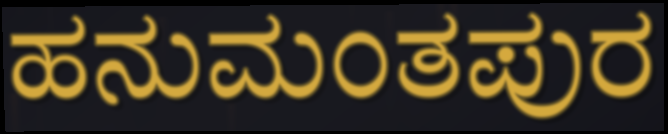
ಹನುಮಂತಪುರ